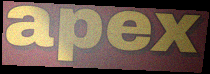
apex